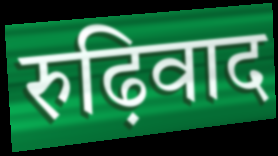
रुढ़िवाद